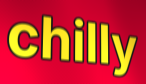
chilly